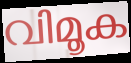
വിമൂക